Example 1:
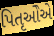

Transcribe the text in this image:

પિતૃઓેએ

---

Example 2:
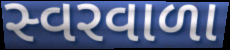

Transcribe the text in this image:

સ્વરવાળા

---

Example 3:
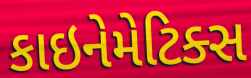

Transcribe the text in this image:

કાઇનેમેટિક્સ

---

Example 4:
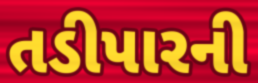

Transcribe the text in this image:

તડીપારની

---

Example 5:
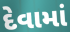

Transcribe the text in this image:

દેવામાં